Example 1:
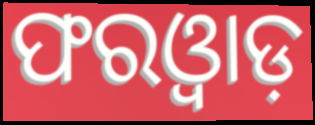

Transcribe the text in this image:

ଫରଓ୍ୱାଡ଼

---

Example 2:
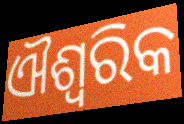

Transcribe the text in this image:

ଐଶ୍ୱରିକ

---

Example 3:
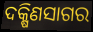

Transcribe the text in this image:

ଦକ୍ଷିଣସାଗର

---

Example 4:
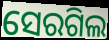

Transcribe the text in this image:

ସେରଗିଲ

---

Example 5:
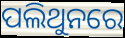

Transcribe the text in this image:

ପଲିଥୁନରେ